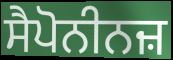
ਸੈਪੋਨੀਨਜ਼